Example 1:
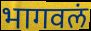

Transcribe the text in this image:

भागवलं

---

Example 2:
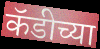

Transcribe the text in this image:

कॅडीच्या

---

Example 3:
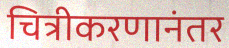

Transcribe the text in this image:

चित्रीकरणानंतर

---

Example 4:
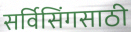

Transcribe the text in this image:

सर्विसिंगसाठी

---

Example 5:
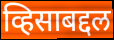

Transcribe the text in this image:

व्हिसाबद्दल